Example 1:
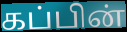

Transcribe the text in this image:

கப்பின்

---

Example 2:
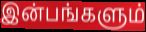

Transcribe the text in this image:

இன்பங்களும்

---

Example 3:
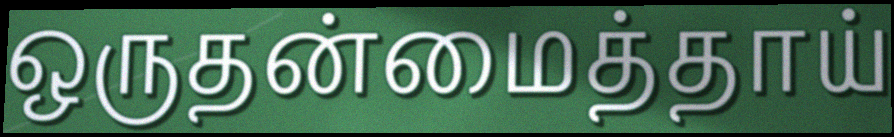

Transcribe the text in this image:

ஒருதன்மைத்தாய்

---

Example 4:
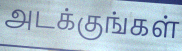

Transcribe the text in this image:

அடக்குங்கள்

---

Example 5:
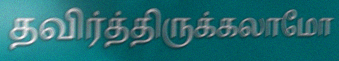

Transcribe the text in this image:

தவிர்த்திருக்கலாமோ